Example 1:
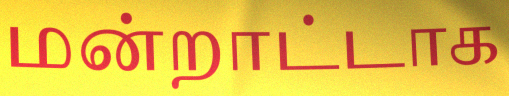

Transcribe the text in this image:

மன்றாட்டாக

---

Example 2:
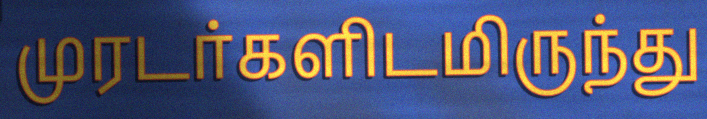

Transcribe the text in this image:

முரடர்களிடமிருந்து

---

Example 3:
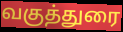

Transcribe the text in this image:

வகுத்துரை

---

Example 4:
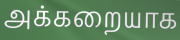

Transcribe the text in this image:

அக்கறையாக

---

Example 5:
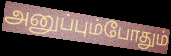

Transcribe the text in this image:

அனுப்பும்போதும்